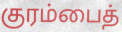
குரம்பைத்